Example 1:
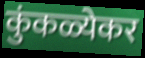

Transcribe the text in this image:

कुंकळ्येकर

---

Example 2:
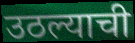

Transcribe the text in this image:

उठल्याची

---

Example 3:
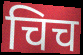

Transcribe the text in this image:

चिच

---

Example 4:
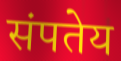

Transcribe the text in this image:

संपतेय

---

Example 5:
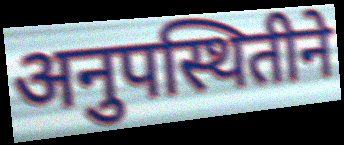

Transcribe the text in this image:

अनुपस्थितीने